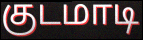
குடமாடி